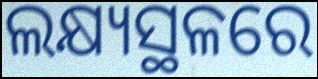
ଲକ୍ଷ୍ୟସ୍ଥଳରେ